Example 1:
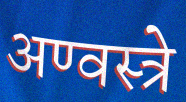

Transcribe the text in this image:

अण्वस्त्रे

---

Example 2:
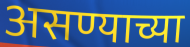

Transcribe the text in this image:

असण्याच्या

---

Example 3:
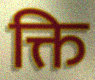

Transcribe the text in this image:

क्ति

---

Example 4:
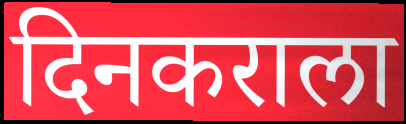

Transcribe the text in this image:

दिनकराला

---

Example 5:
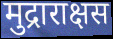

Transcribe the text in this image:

मुद्राराक्षस